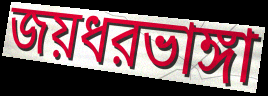
জয়ধরভাঙ্গা